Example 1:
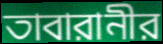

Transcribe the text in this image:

তাবারানীর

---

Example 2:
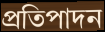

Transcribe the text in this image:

প্রতিপাদন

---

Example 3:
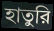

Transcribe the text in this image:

হাতুরি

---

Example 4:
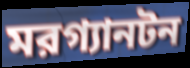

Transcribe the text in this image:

মরগ্যানটন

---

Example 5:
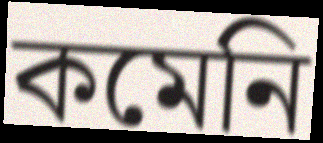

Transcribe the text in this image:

কমেনি